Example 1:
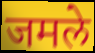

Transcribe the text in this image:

जमले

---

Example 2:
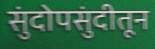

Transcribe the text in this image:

सुंदोपसुंदीतून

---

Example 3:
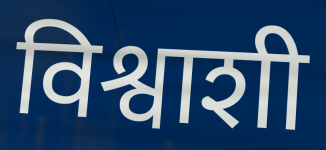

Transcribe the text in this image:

विश्वाशी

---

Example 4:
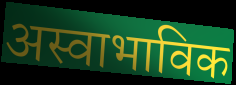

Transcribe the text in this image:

अस्वाभाविक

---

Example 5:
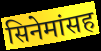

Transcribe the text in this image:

सिनेमांसह